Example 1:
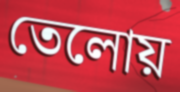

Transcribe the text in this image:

তেলোয়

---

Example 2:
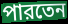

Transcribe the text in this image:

পারতেন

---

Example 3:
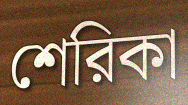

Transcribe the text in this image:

শেরিকা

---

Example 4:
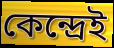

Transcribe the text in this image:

কেন্দ্রেই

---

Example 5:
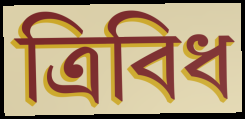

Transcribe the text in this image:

ত্রিবিধ